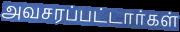
அவசரப்பட்டார்கள்